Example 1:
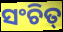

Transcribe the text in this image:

ସଂଚିତ୍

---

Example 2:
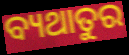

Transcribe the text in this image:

ବ୍ୟଥାତୁର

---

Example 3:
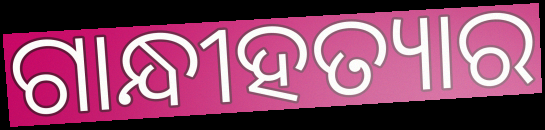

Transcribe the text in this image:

ଗାନ୍ଧୀହତ୍ୟାର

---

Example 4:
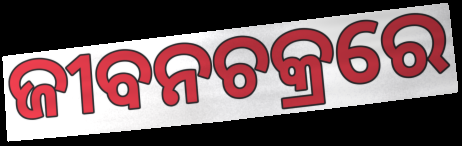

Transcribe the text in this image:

ଜୀବନଚକ୍ରରେ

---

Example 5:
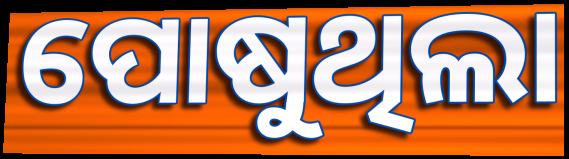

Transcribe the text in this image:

ପୋଷୁଥିଲା